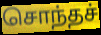
சொந்தச்